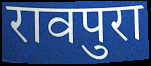
रावपुरा